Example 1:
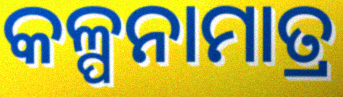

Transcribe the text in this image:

କଳ୍ପନାମାତ୍ର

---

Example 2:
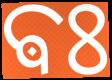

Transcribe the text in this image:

ଵଃ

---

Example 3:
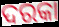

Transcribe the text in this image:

ଦରକା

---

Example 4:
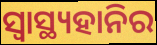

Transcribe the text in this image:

ସ୍ଵାସ୍ଥ୍ୟହାନିର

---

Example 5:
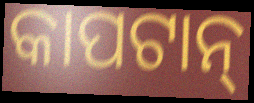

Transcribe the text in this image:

କାପଟାନ୍